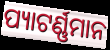
ପ୍ୟାଟର୍ଣ୍ଣମାନ